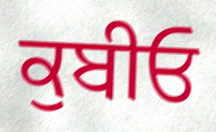
ਕੁਬੀਓ